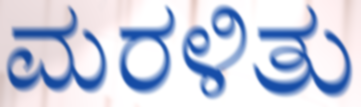
ಮರಳಿತು